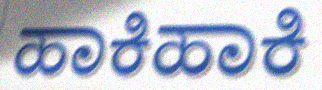
ಹಾಕಿಹಾಕಿ